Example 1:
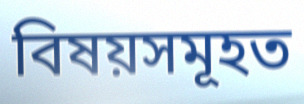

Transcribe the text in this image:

বিষয়সমূহত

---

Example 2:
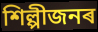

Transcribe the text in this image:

শিল্পীজনৰ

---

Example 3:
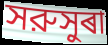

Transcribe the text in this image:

সৰুসুৰা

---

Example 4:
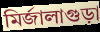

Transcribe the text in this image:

মিৰ্জালাগুড়া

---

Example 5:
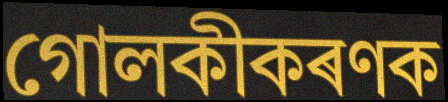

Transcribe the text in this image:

গোলকীকৰণক